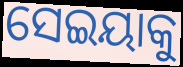
ସେଇୟାକୁ